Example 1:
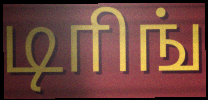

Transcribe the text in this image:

டிரிங்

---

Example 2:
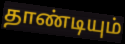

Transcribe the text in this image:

தாண்டியும்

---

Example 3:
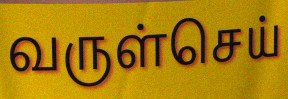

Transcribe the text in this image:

வருள்செய்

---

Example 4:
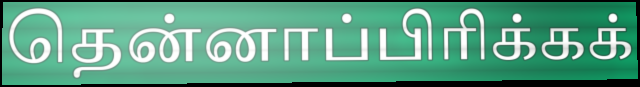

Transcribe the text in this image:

தென்னாப்பிரிக்கக்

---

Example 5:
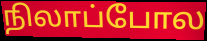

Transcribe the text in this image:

நிலாப்போல